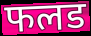
फलड